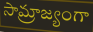
సామ్రాజ్యంగా